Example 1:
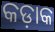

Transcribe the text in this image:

କଡ଼ାକ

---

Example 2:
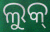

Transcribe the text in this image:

ଲୁକ୍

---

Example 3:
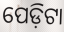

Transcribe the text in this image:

ପେଡ଼ିଟା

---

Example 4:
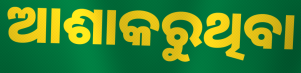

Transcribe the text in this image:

ଆଶାକରୁଥିବା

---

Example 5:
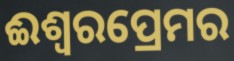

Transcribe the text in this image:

ଈଶ୍ୱରପ୍ରେମର